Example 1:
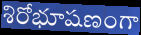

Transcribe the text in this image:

శిరోభూషణంగా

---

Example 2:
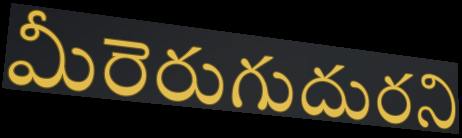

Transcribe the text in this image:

మీరెరుగుదురని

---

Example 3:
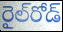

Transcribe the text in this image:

రైల్‌రోడ్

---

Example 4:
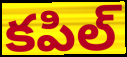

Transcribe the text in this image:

కపిల్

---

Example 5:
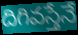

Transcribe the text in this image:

దిగివస్తేనే